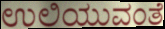
ಉಲಿಯುವಂತೆ